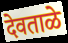
देवताळे